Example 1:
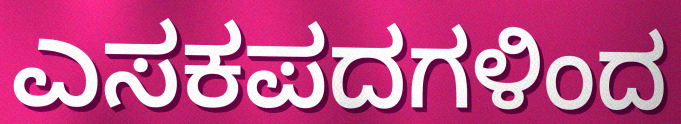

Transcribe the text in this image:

ಎಸಕಪದಗಳಿಂದ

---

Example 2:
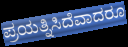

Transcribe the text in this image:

ಪ್ರಯತ್ನಿಸಿದೆವಾದರೂ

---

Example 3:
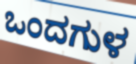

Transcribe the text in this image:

ಒಂದಗುಳ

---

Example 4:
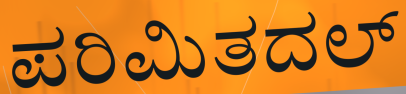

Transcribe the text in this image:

ಪರಿಮಿತದಲ್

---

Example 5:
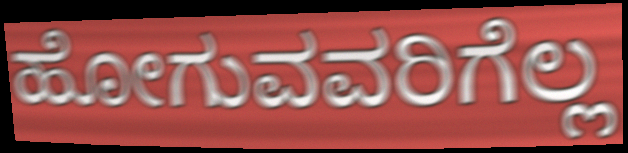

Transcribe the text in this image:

ಹೋಗುವವರಿಗೆಲ್ಲ